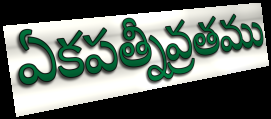
ఏకపత్నీవ్రతము